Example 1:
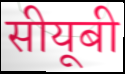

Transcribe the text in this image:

सीयूबी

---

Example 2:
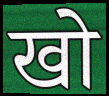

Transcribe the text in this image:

खो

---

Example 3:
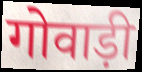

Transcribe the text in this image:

गोवाड़ी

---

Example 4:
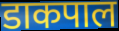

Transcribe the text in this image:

डाकपाल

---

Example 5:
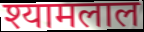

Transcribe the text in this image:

श्यामलाल